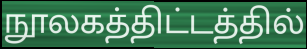
நூலகத்திட்டத்தில்